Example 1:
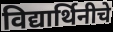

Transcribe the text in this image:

विद्यार्थिनीचे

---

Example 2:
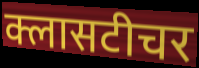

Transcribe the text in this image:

क्लासटीचर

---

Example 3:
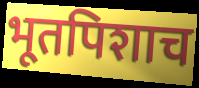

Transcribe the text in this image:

भूतपिशाच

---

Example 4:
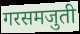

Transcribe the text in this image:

गरसमजुती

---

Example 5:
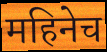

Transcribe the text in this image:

महिनेच